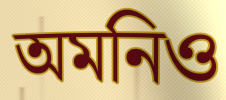
অমনিও